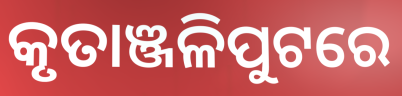
କୃତାଞ୍ଜଳିପୁଟରେ